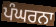
ਪੰਘਰਨਾ